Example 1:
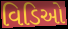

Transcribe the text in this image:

વિડિઓ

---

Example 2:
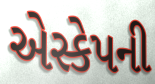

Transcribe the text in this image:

એસ્કેપની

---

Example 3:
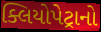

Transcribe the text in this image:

ક્લિયોપેટ્રાનો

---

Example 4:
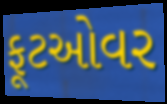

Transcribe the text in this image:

ફૂટઓવર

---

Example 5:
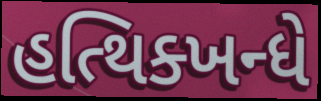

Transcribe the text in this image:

હત્થિક્ખન્ધે